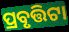
ପ୍ରବୃତ୍ତିଟା